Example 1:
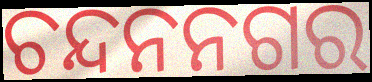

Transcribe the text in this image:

ଚନ୍ଦନନଗର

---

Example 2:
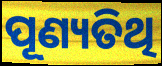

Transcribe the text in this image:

ପୂଣ୍ୟତିଥି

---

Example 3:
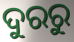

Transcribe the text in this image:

ଦୁରରୁ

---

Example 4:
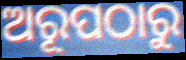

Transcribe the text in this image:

ଅରୂପଠାରୁ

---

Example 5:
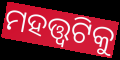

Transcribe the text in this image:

ମହତ୍ତ୍ୱଟିକୁ